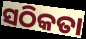
ସଠିକତା